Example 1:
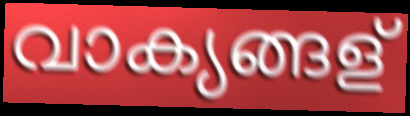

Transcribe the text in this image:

വാക്യങ്ങള്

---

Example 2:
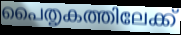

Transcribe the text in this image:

പൈതൃകത്തിലേക്ക്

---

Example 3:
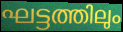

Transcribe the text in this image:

ഘട്ടത്തിലും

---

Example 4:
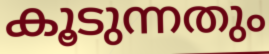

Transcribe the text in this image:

കൂടുന്നതും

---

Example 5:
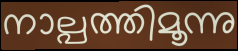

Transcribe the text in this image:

നാല്പത്തിമൂന്നു